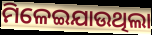
ମିଳେଇଯାଉଥିଲା